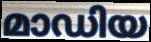
മാഡിയ